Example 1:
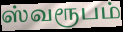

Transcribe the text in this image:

ஸ்வரூபம்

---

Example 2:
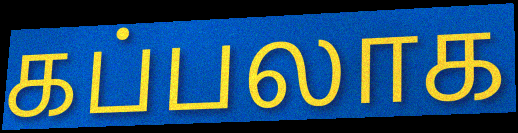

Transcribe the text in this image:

கப்பலாக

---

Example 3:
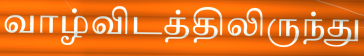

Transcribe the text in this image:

வாழ்விடத்திலிருந்து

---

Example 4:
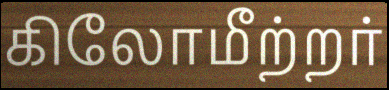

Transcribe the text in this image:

கிலோமீற்றர்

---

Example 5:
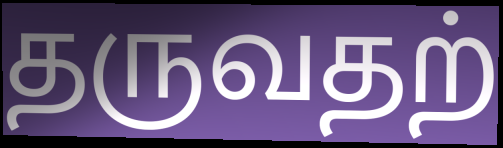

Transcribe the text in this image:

தருவதற்